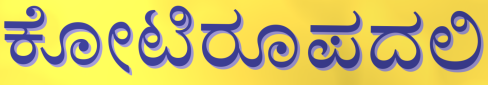
ಕೋಟಿರೂಪದಲಿ